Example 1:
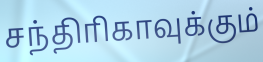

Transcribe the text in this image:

சந்திரிகாவுக்கும்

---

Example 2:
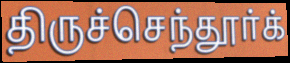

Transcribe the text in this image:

திருச்செந்தூர்க்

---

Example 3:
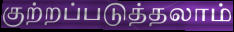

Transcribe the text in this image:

குற்றப்படுத்தலாம்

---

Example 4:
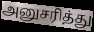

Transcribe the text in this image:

அனுசரித்து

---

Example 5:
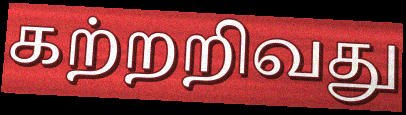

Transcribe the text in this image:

கற்றறிவது